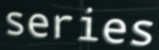
series